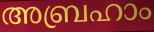
അബ്രഹാം